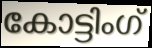
കോട്ടിംഗ്